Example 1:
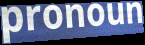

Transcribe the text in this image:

pronoun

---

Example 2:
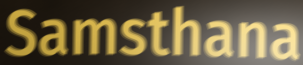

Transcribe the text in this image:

Samsthana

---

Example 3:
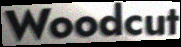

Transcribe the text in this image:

Woodcut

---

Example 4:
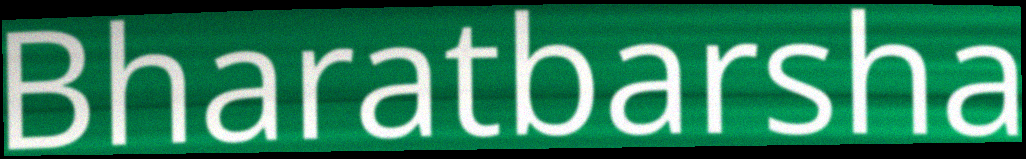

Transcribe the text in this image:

Bharatbarsha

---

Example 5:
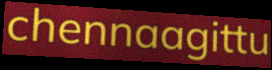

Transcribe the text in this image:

chennaagittu